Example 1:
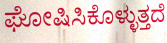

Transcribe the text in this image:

ಘೋಷಿಸಿಕೊಳ್ಳುತ್ತದೆ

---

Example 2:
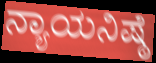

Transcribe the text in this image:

ನ್ಯಾಯನಿಷ್ಠೆ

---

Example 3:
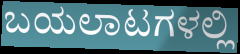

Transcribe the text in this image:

ಬಯಲಾಟಗಳಲ್ಲಿ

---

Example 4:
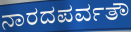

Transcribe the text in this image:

ನಾರದಪರ್ವತೌ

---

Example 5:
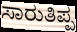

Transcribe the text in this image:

ಸಾರುತಿಪ್ಪ